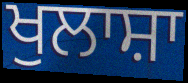
ਖੁਲਾਸ਼ਾ